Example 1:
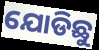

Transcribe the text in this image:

ଯୋଡିଛୁ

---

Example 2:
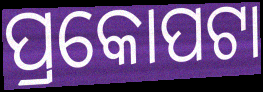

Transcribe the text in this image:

ପ୍ରକୋପଟା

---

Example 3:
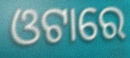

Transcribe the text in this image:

ଓଟାରେ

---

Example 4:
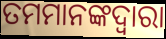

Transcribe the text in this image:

ତମମାନଙ୍କଦ୍ଵାରା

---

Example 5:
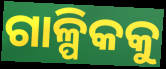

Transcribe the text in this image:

ଗାଳ୍ପିକକୁ